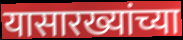
यासारख्यांच्या